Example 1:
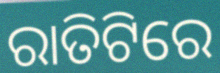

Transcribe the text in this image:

ରାତିଟିରେ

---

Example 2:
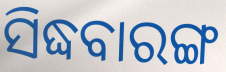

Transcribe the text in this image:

ସିଦ୍ଧବାରଙ୍ଗ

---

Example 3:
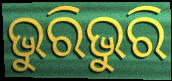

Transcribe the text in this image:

ଭୁରିଭୁରି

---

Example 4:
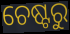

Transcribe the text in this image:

ଚେଷ୍ଟରୁ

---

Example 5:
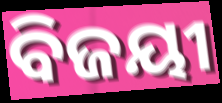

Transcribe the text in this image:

ବିଜୟୀ